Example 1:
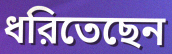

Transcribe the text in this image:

ধরিতেছেন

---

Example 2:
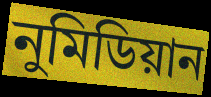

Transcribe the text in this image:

নুমিডিয়ান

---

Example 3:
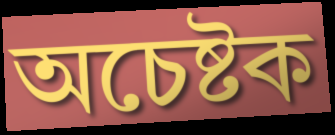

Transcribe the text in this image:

অচেষ্টক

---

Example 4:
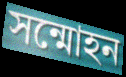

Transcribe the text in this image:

সন্মোহন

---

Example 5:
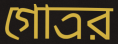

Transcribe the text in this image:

গোত্রর